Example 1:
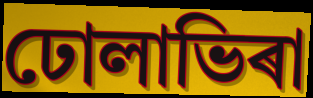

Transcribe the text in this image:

ঢোলাভিৰা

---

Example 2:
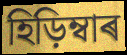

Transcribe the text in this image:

হিড়িম্বাৰ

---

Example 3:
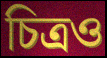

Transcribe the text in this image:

চিত্ৰও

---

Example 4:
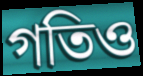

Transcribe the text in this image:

গতিও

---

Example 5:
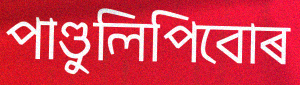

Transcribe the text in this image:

পাণ্ডুলিপিবোৰ